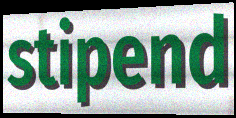
stipend